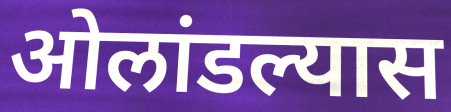
ओलांडल्यास